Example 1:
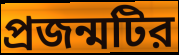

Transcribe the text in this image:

প্রজন্মটির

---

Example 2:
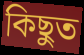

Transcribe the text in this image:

কিছুত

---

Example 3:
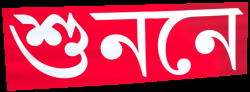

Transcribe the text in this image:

শুননে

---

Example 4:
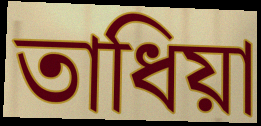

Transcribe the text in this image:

তাধিয়া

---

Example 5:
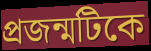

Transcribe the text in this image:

প্রজন্মটিকে